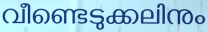
വീണ്ടെടുക്കലിനും